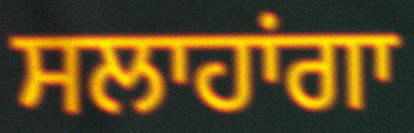
ਸਲਾਹਾਂਗਾ